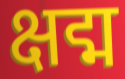
क्षद्म